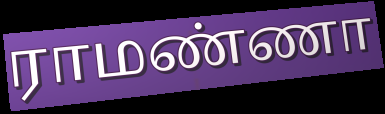
ராமண்ணா